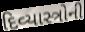
દિવ્યાસ્ત્રોની